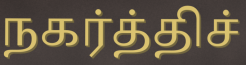
நகர்த்திச்